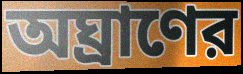
অঘ্রাণের